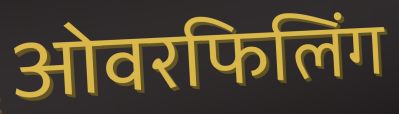
ओवरफिलिंग